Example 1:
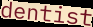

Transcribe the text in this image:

dentist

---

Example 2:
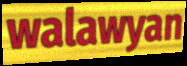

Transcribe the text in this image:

walawyan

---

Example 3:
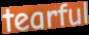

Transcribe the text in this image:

tearful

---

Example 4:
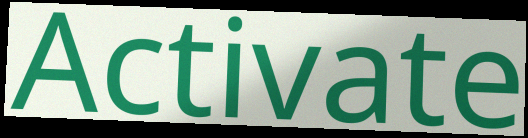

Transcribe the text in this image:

Activate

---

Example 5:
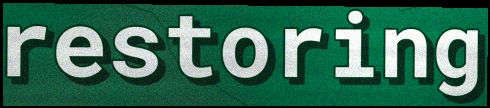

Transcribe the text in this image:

restoring